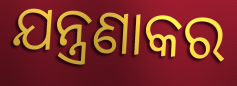
ଯନ୍ତ୍ରଣାକର